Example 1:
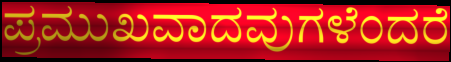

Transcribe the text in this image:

ಪ್ರಮುಖವಾದವುಗಳೆಂದರೆ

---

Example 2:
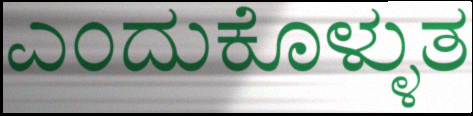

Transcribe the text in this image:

ಎಂದುಕೊಳ್ಳುತ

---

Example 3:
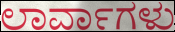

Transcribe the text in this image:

ಲಾರ್ವಾಗಳು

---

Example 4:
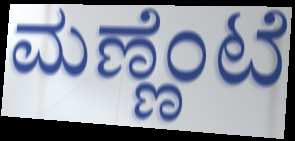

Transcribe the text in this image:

ಮಣ್ಣೆಂಟೆ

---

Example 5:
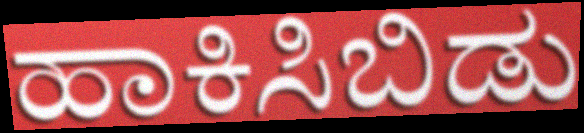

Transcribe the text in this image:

ಹಾಕಿಸಿಬಿಡು